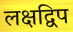
लक्षद्विप